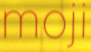
moji